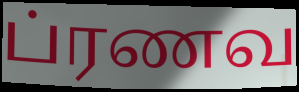
ப்ரணவ